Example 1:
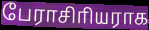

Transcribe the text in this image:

பேராசிரியராக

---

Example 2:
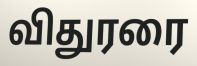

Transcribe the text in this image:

விதுரரை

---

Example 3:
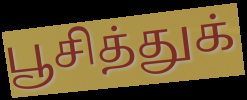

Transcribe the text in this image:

பூசித்துக்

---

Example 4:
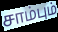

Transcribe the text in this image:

சாம்பும்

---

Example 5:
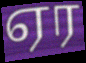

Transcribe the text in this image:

ஏர